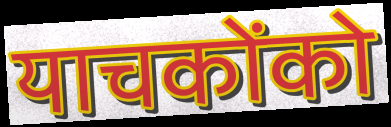
याचकोंको